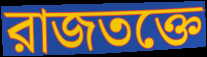
রাজতক্তে